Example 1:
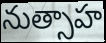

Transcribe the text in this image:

నుత్సాహ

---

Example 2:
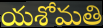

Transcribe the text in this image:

యశోమతి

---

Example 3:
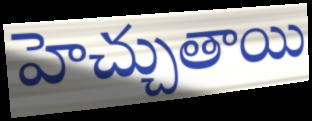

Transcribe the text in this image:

హెచ్చుతాయి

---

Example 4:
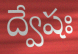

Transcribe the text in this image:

ద్వేషః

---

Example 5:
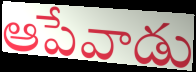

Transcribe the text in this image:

ఆపేవాడు